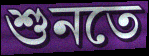
শুনতে